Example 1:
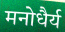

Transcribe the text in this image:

मनोधैर्य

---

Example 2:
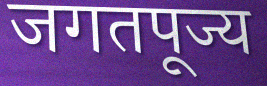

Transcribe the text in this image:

जगतपूज्य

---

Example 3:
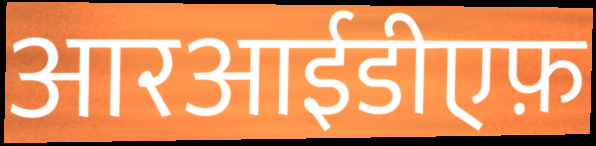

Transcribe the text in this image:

आरआईडीएफ़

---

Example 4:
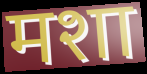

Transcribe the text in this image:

मशा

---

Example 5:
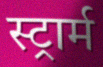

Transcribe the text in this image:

स्ट्रार्म